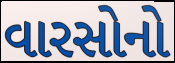
વારસોનો